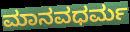
ಮಾನವಧರ್ಮ